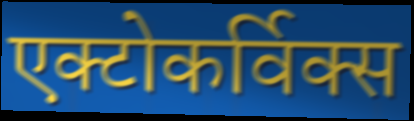
एक्टोकर्विक्स